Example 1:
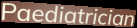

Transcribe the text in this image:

Paediatrician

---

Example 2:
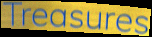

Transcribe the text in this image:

Treasures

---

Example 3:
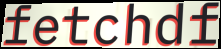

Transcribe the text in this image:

fetchdf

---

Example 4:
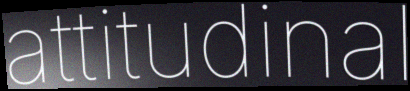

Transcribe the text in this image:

attitudinal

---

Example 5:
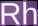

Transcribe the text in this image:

Rh